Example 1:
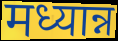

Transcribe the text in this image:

मध्यान्न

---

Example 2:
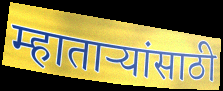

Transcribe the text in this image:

म्हाताऱ्यांसाठी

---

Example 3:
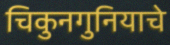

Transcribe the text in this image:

चिकुनगुनियाचे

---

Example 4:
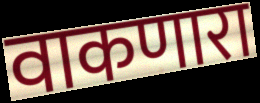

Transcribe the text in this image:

वाकणारा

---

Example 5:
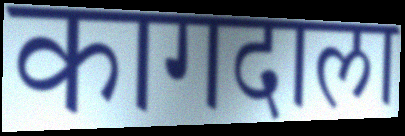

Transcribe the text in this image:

कागदाला